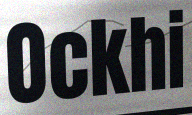
Ockhi